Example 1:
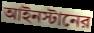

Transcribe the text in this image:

আইনস্টানের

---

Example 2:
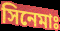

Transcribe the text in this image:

সিনেমাঃ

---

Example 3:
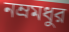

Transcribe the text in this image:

নম্রমধুর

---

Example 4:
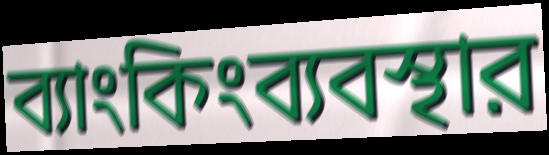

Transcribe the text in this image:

ব্যাংকিংব্যবস্থার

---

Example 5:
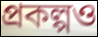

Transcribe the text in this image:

প্রকল্পও